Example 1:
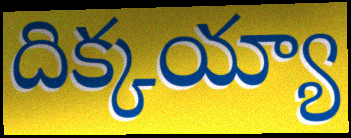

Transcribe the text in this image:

దిక్కయ్యా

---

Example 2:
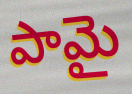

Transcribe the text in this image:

పామై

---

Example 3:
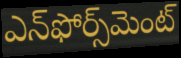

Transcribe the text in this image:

ఎన్‌ఫోర్స్‌మెంట్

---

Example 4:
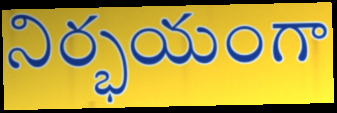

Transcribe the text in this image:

నిర్భయంగా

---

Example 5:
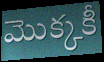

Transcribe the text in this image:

మొక్కకీ